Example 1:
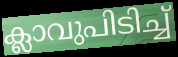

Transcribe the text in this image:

ക്ലാവുപിടിച്ച്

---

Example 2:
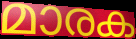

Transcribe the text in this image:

മാരക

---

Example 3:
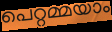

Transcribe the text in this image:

പെറ്റമ്മയാം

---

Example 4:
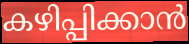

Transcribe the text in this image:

കഴിപ്പിക്കാൻ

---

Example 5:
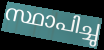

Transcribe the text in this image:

സ്ഥാപിച്ചു